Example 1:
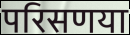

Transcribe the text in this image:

परिसणया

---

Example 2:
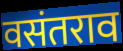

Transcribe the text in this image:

वसंतराव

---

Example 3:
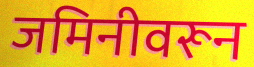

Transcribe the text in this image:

जमिनीवरून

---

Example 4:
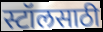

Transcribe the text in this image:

स्टॉलसाठी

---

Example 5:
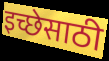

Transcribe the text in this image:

इच्छेसाठी